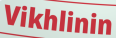
Vikhlinin